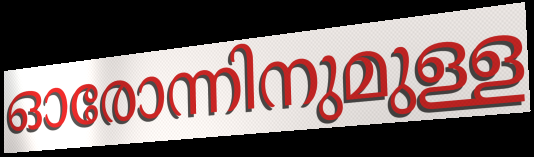
ഓരോന്നിനുമുള്ള